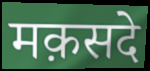
मक़सदे